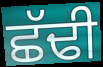
ਛੱਢੀ